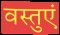
वस्तुएं